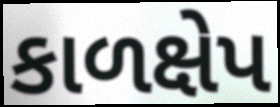
કાળક્ષેપ